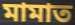
মামাত